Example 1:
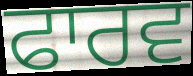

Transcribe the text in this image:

ਫਾਰਵ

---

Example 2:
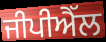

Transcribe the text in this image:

ਜੀਪੀਐੱਲ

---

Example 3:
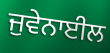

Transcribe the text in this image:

ਜੁਵੇਨਾਈਲ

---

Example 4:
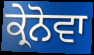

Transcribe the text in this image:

ਕ੍ਰੇਨੋਵਾ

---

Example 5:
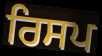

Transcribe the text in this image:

ਰਿਸਪ